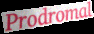
Prodromal